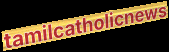
tamilcatholicnews